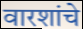
वारशांचे